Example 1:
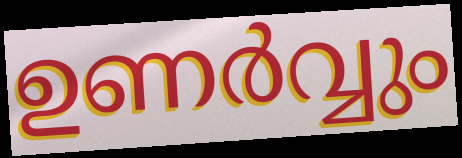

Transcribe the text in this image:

ഉണർവ്വും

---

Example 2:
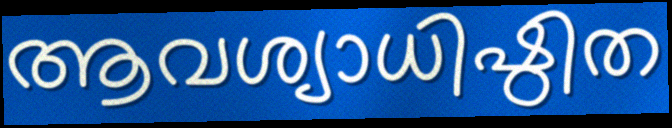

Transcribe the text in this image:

ആവശ്യാധിഷ്ഠിത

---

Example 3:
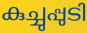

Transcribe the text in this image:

കുച്ചുപ്പുടി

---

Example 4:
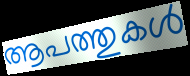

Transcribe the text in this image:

ആപത്തുകൾ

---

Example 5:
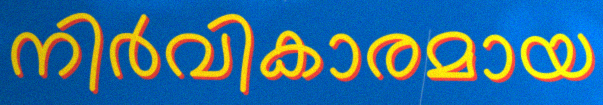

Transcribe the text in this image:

നിർവികാരമായ